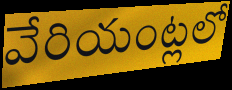
వేరియంట్లలో